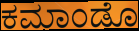
ಕಮಾಂಡೊ